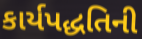
કાર્યપદ્ધતિની